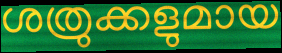
ശത്രുക്കളുമായ